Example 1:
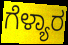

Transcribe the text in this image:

ಗೆಳ್ಯಾರ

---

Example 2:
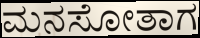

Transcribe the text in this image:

ಮನಸೋತಾಗ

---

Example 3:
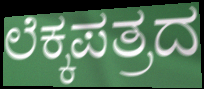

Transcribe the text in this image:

ಲೆಕ್ಕಪತ್ರದ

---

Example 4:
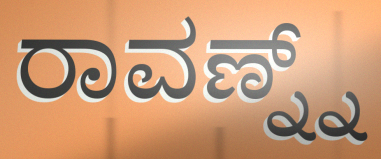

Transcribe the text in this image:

ರಾವಣ್ನ್ನ್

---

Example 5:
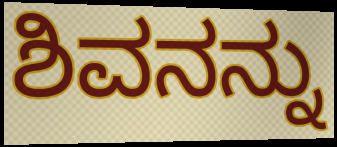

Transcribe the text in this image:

ಶಿವನನ್ನು